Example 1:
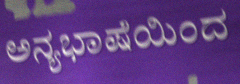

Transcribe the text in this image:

ಅನ್ಯಭಾಷೆಯಿಂದ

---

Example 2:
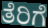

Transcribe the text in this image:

ತೆರಿಗೆ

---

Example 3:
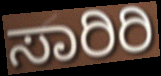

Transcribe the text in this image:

ಸಾರಿರಿ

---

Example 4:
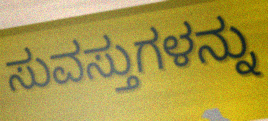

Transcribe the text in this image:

ಸುವಸ್ತುಗಳನ್ನು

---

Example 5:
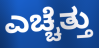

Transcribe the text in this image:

ಎಚ್ಚೆತ್ತು